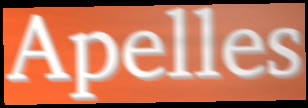
Apelles